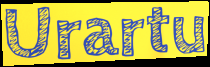
Urartu